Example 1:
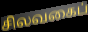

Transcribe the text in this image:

சிலவகைப்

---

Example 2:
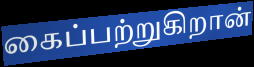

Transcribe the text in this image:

கைப்பற்றுகிறான்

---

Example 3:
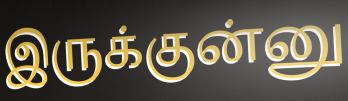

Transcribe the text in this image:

இருக்குன்னு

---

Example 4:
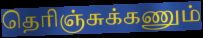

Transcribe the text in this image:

தெரிஞ்சுக்கணும்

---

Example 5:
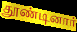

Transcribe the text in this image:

தூண்டினார்